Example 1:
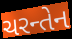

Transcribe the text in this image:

ચરન્તેન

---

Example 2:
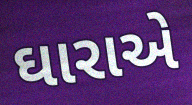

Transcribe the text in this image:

ઘારાએ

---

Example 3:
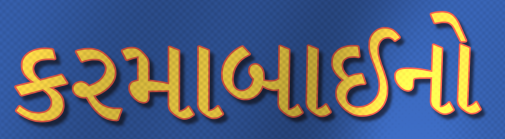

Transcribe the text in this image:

કરમાબાઈનો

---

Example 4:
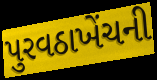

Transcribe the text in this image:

પુરવઠાખેંચની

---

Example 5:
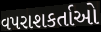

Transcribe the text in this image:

વપરાશકર્તાઓ